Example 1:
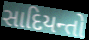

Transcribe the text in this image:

સાદિયન્તો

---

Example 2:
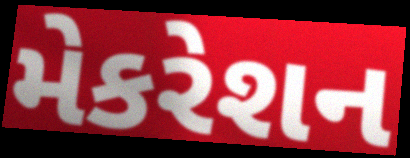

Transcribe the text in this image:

મેકરેશન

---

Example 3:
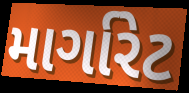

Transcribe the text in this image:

માર્ગારેટ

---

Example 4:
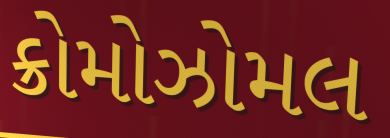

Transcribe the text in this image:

ક્રોમોઝોમલ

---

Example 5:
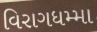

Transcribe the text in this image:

વિરાગધમ્મા